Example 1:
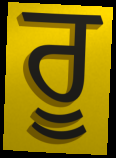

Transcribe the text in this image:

ਰੂ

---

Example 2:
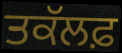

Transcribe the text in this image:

ਤਕੱਲਫ਼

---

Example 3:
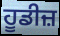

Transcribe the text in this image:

ਹੂਡੀਜ਼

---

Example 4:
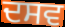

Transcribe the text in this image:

ਦਸਵ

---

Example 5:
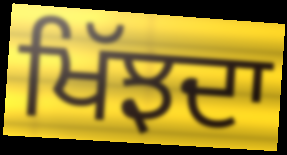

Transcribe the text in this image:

ਖਿੱਝਦਾ